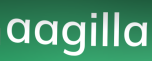
aagilla